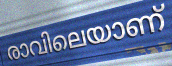
രാവിലെയാണ്